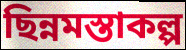
ছিন্নমস্তাকল্প